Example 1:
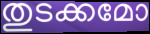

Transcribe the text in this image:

തുടക്കമോ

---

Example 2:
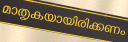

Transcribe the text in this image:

മാതൃകയായിരിക്കണം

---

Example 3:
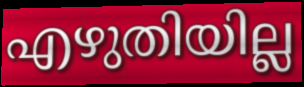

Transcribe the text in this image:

എഴുതിയില്ല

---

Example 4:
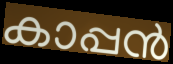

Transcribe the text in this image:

കാപ്പൻ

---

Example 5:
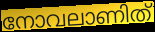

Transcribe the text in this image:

നോവലാണിത്